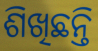
ଶିଖିଛନ୍ତି